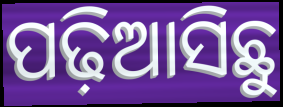
ପଢ଼ିଆସିଛୁ